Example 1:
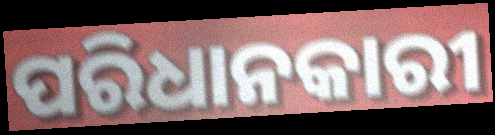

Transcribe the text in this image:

ପରିଧାନକାରୀ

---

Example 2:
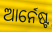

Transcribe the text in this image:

ଆର୍ନେଷ୍ଟ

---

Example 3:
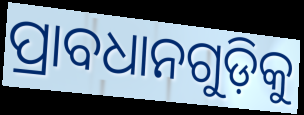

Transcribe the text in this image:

ପ୍ରାବଧାନଗୁଡ଼ିକୁ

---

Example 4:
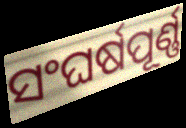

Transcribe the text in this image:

ସଂଘର୍ଷପୂର୍ଣ୍ଣ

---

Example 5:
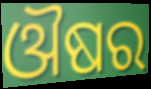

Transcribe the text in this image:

ଔଷର